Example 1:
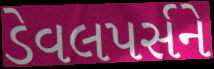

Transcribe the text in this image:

ડેવલપર્સને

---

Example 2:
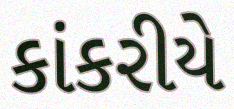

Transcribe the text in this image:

કાંકરીયે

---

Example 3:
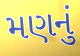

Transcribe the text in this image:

મણનું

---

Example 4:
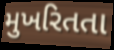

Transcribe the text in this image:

મુખરિતતા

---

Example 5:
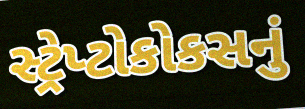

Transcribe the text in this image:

સ્ટ્રેપ્ટોકોકસનું